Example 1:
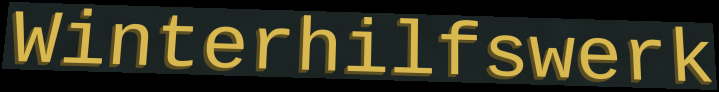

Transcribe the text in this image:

Winterhilfswerk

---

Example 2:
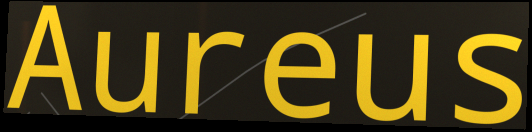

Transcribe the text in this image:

Aureus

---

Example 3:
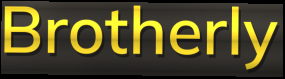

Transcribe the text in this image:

Brotherly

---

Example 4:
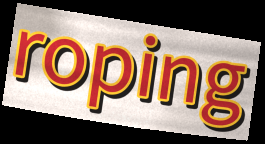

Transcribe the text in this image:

roping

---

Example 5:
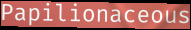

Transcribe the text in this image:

Papilionaceous